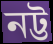
নট্ট